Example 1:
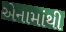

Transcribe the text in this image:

એનામાંથી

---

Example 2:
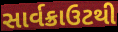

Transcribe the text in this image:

સાર્વક્રાઉટથી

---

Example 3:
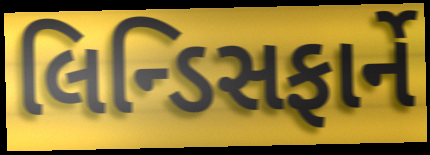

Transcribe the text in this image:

લિન્ડિસફાર્ને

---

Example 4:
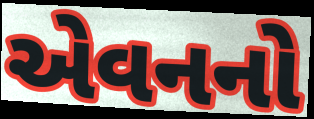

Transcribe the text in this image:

એવનનો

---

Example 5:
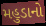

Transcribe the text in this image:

મહુડાનો